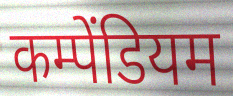
कम्पेंडियम